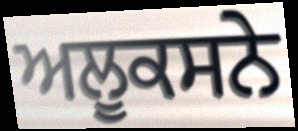
ਅਲੂਕਸਨੇ